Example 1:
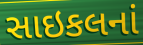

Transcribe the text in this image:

સાઇકલનાં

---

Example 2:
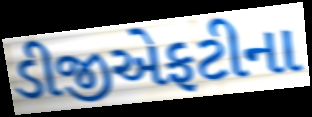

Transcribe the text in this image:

ડીજીએફટીના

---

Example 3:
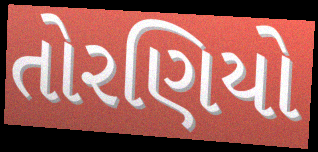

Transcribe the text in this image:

તોરણિયો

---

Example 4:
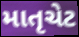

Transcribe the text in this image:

માતૃચેટ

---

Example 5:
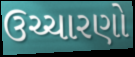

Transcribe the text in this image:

ઉચ્ચારણો